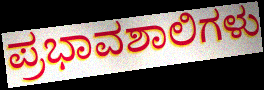
ಪ್ರಭಾವಶಾಲಿಗಳು